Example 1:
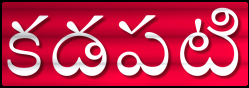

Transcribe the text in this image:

కడపటి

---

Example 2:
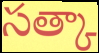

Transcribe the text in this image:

సత్కా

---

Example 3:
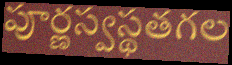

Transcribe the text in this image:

పూర్ణస్వస్థతగల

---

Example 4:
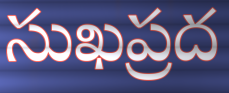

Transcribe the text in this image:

సుఖప్రద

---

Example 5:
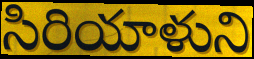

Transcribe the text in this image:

సిరియాళుని